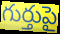
గుర్తుపై